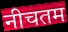
नीचतम